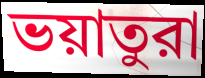
ভয়াতুরা